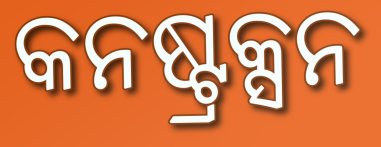
କନଷ୍ଟ୍ରକ୍ସନ